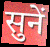
सुनें